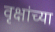
वृक्षांच्या